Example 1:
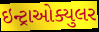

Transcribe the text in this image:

ઇન્ટ્રાઓક્યુલર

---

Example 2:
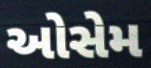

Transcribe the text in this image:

ઓસેમ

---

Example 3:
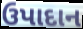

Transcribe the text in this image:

ઉપાદાન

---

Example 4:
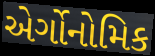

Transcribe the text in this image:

એર્ગોનોમિક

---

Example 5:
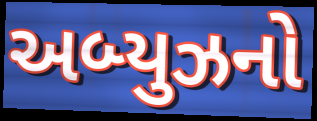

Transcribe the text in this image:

અબ્યુઝનો